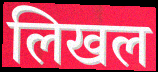
लिखल